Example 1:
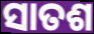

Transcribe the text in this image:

ସାତଶ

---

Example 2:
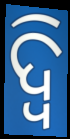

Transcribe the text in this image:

ଦ୍ଵି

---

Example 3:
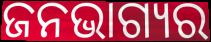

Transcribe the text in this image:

ଜନଭାଗ୍ୟର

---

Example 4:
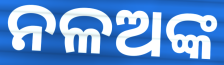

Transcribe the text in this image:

ନଳଅଙ୍କ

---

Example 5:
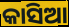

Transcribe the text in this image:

କାସିଆ